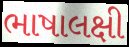
ભાષાલક્ષી